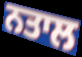
ਨਤਾਲ